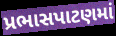
પ્રભાસપાટણમાં